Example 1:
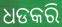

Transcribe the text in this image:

ଧଡକରି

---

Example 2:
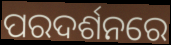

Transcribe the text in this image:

ପରଦର୍ଶନରେ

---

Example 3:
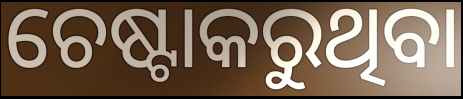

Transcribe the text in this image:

ଚେଷ୍ଟାକରୁଥିବା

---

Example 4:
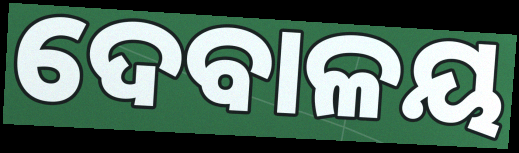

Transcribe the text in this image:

ଦେବାଳୟ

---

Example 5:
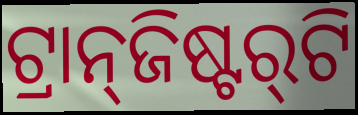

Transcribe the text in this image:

ଟ୍ରାନ୍‌ଜିଷ୍ଟର୍‌ଟି